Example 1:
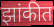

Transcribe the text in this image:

झांकीत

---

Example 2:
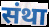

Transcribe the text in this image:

संथा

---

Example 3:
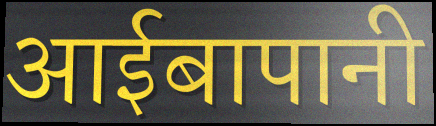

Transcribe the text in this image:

आईबापानी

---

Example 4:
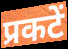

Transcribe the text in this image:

प्रकटें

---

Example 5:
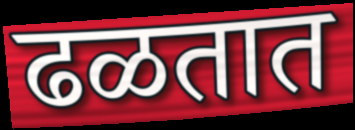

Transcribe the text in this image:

ढळतात